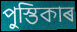
পুস্তিকাৰ